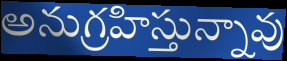
అనుగ్రహిస్తున్నావు